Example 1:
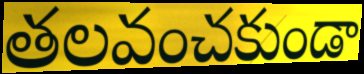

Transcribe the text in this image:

తలవంచకుండా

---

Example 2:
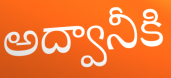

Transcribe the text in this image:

అద్వానీకి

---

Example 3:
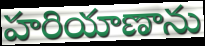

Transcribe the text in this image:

హరియాణాను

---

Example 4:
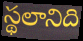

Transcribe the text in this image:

స్థలానిది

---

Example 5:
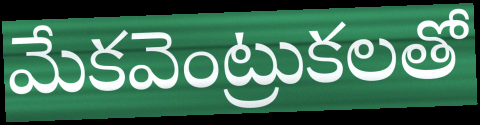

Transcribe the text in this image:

మేకవెంట్రుకలతో